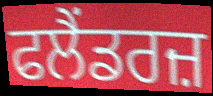
ਫਲੈਂਡਰਜ਼